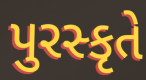
પુરસ્કૃતે